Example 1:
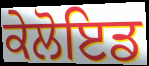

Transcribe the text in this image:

ਕੇਲੋਇਡ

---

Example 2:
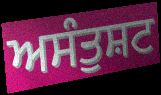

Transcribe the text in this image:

ਅਸੰਤੁਸ਼ਟ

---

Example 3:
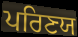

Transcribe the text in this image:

ਪਰਿਣਯ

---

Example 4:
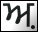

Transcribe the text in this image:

ਅ਼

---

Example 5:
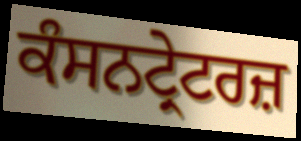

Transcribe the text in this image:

ਕੰਸਨਟ੍ਰੇਟਰਜ਼